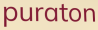
puraton